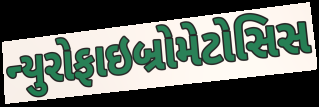
ન્યુરોફાઇબ્રોમેટોસિસ